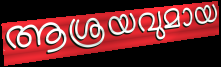
ആശ്രയവുമായ